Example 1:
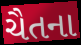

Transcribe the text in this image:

ચૈતના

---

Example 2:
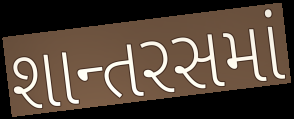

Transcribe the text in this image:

શાન્તરસમાં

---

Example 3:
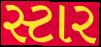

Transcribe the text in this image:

સ્ટાર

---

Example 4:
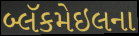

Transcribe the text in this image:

બ્લૅકમેઇલના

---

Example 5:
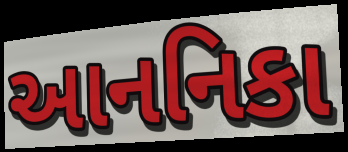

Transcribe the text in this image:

આનનિકા